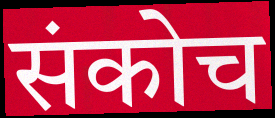
संकोच